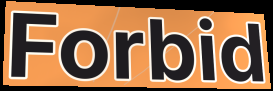
Forbid